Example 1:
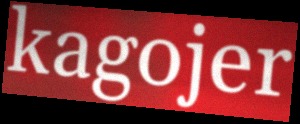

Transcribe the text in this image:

kagojer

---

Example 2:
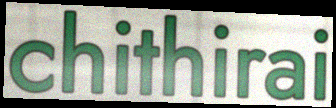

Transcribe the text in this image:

chithirai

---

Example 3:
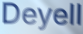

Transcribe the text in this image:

Deyell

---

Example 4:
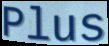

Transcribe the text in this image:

Plus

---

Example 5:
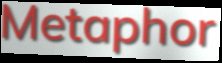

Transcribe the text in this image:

Metaphor